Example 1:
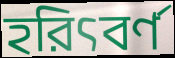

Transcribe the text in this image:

হরিৎবর্ণ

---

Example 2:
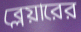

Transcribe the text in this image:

ব্লেয়ারের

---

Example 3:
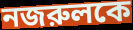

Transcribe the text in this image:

নজরুলকে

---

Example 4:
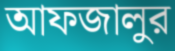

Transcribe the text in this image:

আফজালুর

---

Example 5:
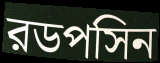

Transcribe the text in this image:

রডপসিন